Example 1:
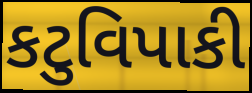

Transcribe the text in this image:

કટુવિપાકી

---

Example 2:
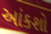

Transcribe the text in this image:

આંકશો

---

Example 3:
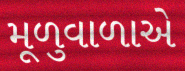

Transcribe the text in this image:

મૂળુવાળાએ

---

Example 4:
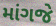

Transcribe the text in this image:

માંગજે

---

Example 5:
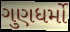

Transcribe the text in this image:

ગુણધર્મો